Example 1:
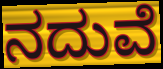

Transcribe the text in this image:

ನದುವೆ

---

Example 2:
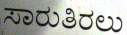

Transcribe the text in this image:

ಸಾರುತಿರಲು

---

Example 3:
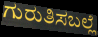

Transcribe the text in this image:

ಗುರುತಿಸಬಲ್ಲೆ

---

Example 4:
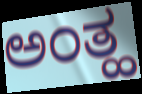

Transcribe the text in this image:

ಅಂತ್ಹ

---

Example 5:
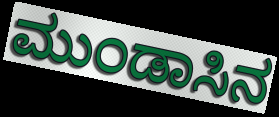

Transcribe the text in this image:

ಮುಂಡಾಸಿನ